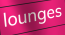
lounges